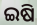
ଇଷି